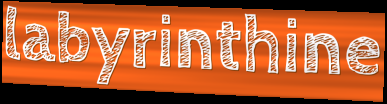
labyrinthine